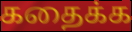
கதைக்க